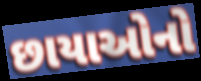
છાયાઓનો